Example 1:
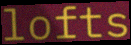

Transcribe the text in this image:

lofts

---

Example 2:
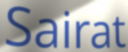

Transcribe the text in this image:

Sairat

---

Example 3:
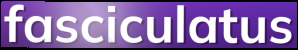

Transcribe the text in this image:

fasciculatus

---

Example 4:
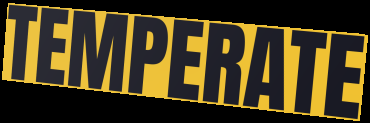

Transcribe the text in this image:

TEMPERATE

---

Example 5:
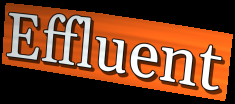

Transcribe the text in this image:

Effluent